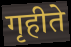
गृहीते